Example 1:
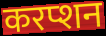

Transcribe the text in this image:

करप्‍शन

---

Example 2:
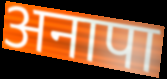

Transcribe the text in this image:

अनापा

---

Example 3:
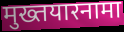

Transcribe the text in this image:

मुख्तयारनामा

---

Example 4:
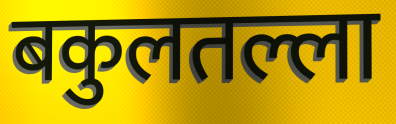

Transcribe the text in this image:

बकुलतल्ला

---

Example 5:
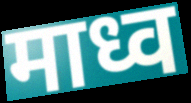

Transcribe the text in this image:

माध्व